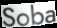
Soba